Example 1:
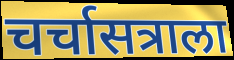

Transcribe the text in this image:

चर्चासत्राला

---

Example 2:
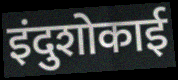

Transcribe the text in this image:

इंदुशोकाई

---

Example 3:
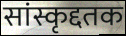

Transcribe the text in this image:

सांस्कृद्दतक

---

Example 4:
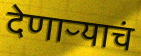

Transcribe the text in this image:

देणाऱ्याचं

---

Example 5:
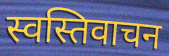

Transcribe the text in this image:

स्वस्तिवाचन